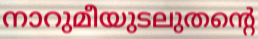
നാറുമീയുടലുതന്റെ